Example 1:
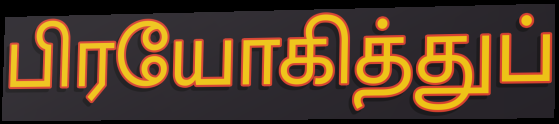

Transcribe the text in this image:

பிரயோகித்துப்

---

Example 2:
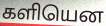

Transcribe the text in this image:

களியென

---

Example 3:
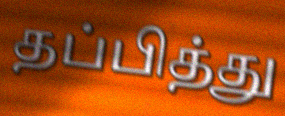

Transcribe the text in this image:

தப்பித்து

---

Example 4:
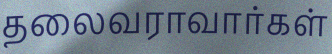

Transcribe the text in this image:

தலைவராவார்கள்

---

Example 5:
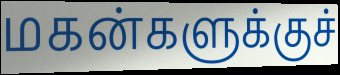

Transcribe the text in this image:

மகன்களுக்குச்